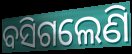
ବସିଗଲେଣି